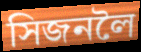
সিজনলৈ